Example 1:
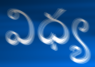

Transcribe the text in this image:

విధ్య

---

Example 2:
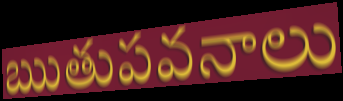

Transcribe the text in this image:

ఋతుపవనాలు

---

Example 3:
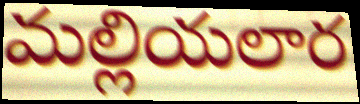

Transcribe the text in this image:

మల్లియలార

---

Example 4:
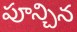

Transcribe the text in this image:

పూన్చిన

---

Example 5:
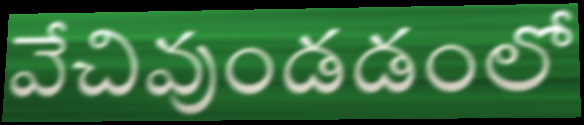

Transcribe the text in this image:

వేచివుండడంలో